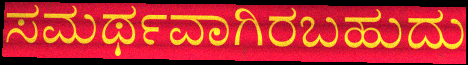
ಸಮರ್ಥವಾಗಿರಬಹುದು